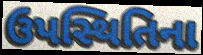
ઉપસ્થિતિના